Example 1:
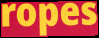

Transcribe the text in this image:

ropes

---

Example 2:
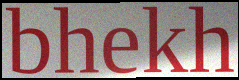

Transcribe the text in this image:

bhekh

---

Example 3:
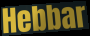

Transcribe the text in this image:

Hebbar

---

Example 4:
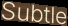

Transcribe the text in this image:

Subtle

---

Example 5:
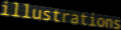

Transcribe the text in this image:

illustrations